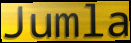
Jumla